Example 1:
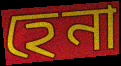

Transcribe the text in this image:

হেনা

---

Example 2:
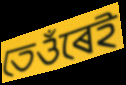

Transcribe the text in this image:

তেওঁৰেই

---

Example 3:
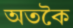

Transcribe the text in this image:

অতকৈ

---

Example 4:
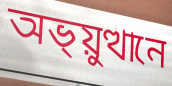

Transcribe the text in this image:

অভ্য়ুত্থানে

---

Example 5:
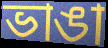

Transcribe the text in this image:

ভাঙা